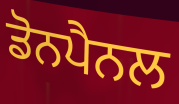
ਡੋਨਪੈਨਲ